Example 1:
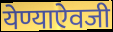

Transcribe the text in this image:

येण्याऐवजी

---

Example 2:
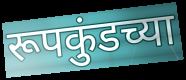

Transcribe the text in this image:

रूपकुंडच्या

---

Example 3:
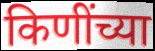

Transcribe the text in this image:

किणींच्या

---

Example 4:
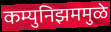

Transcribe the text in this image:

कम्युनिझममुळे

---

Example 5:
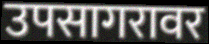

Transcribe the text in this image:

उपसागरावर